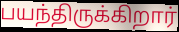
பயந்திருக்கிறார்